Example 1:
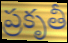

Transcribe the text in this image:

ప్రకృతీ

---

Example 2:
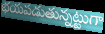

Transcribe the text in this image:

భయపడుతున్నట్టుగా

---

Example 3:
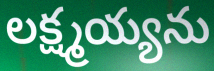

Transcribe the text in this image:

లక్ష్మయ్యను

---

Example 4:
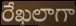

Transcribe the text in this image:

రేఖలాగా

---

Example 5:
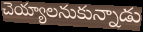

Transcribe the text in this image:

చెయ్యాలనుకున్నాడు